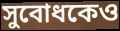
সুবোধকেও